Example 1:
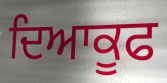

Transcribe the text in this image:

ਦਿਆਕੂਫ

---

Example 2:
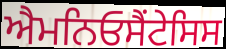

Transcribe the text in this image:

ਐਮਨਿਓਸੈਂਟੇਸਿਸ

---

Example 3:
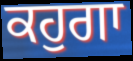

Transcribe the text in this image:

ਕਹੁਗਾ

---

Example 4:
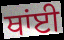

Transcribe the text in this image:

ਥਾਂਈ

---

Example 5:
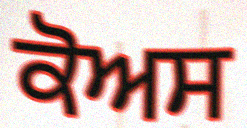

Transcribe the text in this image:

ਕੋਅਸ